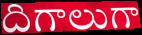
దిగాలుగా